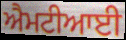
ਐਮਟੀਆਈ